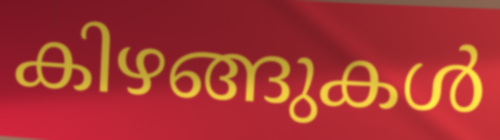
കിഴങ്ങുകൾ